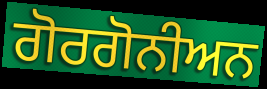
ਗੋਰਗੋਨੀਅਨ